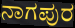
ನಾಗಪುರ